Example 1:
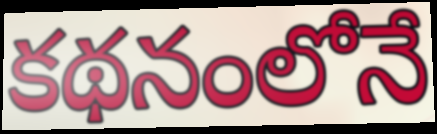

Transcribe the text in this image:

కథనంలోనే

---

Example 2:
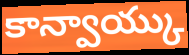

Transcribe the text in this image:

కాన్వాయ్కు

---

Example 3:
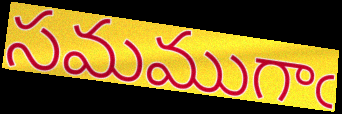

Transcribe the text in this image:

సమముగాఁ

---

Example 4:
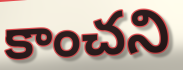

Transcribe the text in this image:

కాంచని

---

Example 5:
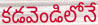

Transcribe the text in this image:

కడవెండిలోనే